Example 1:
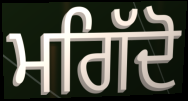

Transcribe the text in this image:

ਮਗਿੱਦੋ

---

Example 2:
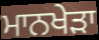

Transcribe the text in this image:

ਮਾਨਖੇੜਾ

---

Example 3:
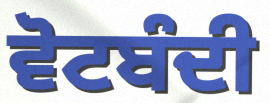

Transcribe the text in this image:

ਵੋਟਬੰਦੀ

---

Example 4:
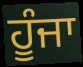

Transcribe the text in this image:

ਹੂੰਜਾ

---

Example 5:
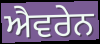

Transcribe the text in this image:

ਐਵਰੇਨ